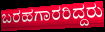
ಬರಹಗಾರರಿದ್ದರು